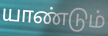
யாண்டும்